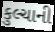
કુલ્ચાની